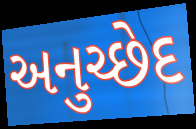
અનુચ્છેદ